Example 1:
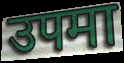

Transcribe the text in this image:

उपमा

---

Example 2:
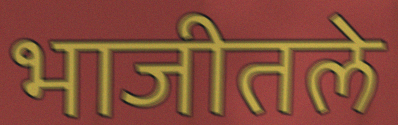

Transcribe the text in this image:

भाजीतले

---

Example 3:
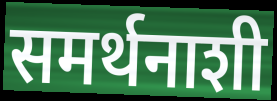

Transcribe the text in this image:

समर्थनाशी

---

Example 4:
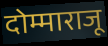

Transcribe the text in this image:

दोम्माराजू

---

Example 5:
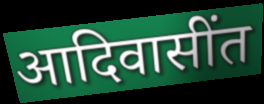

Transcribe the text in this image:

आदिवासींत